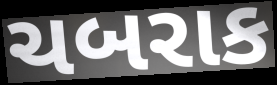
ચબરાક